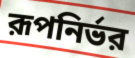
রূপনির্ভর